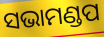
ସଭାମଣ୍ଡପ